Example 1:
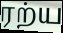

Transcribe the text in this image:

ரற்ய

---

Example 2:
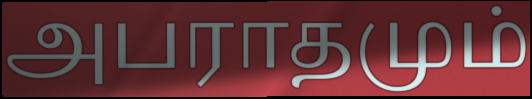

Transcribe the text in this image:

அபராதமும்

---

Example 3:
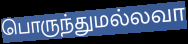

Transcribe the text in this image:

பொருந்துமல்லவா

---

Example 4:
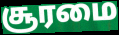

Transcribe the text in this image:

சூரமை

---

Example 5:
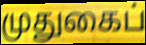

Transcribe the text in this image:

முதுகைப்